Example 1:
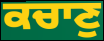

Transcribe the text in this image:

ਕਚਾਣੁ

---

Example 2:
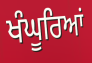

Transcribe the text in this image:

ਖੰਘੂਰਿਆਂ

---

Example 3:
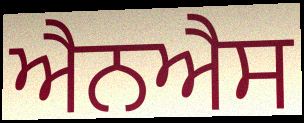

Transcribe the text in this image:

ਐਨਐਸ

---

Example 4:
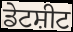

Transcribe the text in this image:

ਡੇਟਸ਼ੀਟ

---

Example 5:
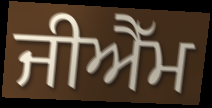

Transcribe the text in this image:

ਜੀਐੱਮ